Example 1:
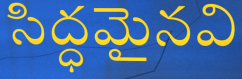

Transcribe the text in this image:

సిద్ధమైనవి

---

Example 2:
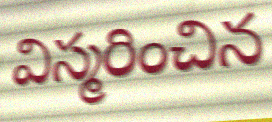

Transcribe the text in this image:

విస్మరించిన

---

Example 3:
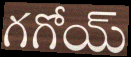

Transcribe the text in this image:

గగోయ్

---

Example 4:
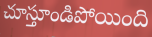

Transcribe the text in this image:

చూస్తూండిపోయింది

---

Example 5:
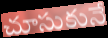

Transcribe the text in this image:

చూసుకునే